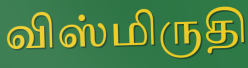
விஸ்மிருதி